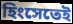
হিংসেতেই